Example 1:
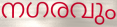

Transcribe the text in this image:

നഗരവും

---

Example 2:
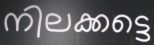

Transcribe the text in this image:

നിലക്കട്ടെ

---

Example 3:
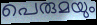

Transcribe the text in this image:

പെരുമയും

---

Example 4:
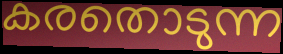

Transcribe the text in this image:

കരതൊടുന്ന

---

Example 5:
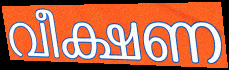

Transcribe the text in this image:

വീക്ഷണ